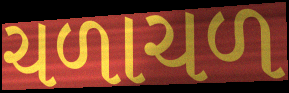
ચળાચળ